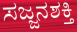
ಸಜ್ಜನಶಕ್ತಿ